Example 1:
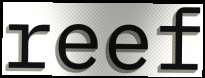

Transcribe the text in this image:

reef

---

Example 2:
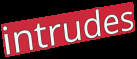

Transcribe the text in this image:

intrudes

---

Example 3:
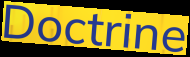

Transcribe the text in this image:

Doctrine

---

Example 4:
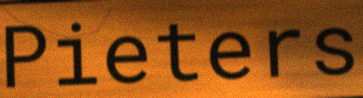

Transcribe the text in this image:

Pieters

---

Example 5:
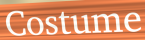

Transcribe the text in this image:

Costume